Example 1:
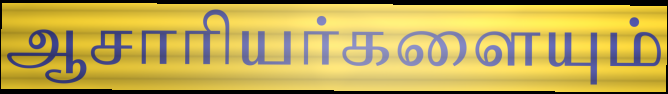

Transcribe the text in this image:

ஆசாரியர்களையும்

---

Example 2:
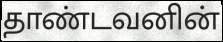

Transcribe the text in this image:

தாண்டவனின்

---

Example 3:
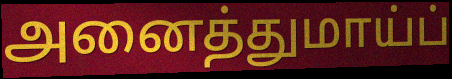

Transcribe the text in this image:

அனைத்துமாய்ப்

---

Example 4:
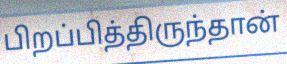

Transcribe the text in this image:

பிறப்பித்திருந்தான்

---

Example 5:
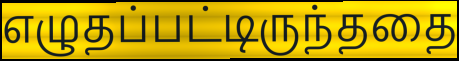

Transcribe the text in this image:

எழுதப்பட்டிருந்ததை